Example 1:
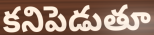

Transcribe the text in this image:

కనిపెడుతూ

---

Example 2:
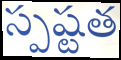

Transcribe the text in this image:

స్పష్టత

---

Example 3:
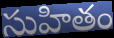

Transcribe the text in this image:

సుహితం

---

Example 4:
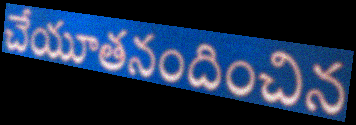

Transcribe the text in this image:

చేయూతనందించిన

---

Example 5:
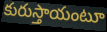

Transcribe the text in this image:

కురుస్తాయంటూ